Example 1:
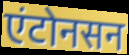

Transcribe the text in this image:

एंटोनसन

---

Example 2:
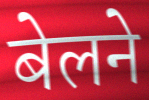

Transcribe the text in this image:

बेलने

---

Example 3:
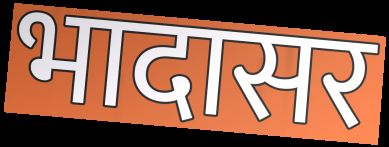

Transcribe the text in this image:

भादासर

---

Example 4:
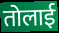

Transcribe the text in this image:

तोलाई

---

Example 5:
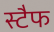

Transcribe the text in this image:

स्टैफ